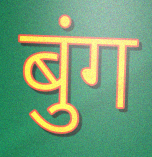
बुंग